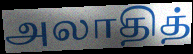
அலாதித்